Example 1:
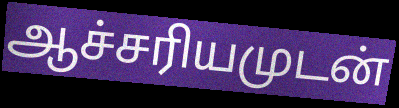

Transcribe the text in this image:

ஆச்சரியமுடன்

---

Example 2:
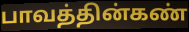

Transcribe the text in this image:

பாவத்தின்கண்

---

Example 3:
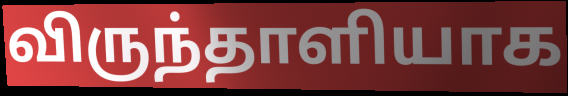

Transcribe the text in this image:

விருந்தாளியாக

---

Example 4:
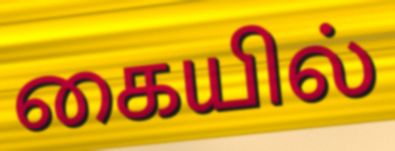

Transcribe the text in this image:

கையில்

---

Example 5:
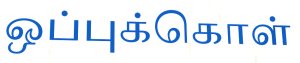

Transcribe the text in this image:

ஒப்புக்கொள்